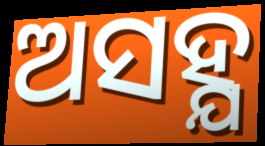
ଅସହ୍ଯ